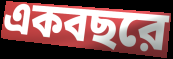
একবছরে